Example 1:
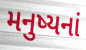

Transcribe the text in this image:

મનુષ્યનાં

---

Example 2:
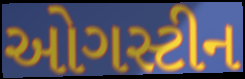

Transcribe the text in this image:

ઓગસ્ટીન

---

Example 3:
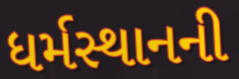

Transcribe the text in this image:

ધર્મસ્થાનની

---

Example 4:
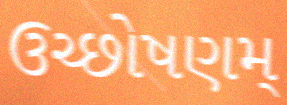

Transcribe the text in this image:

ઉચ્છોષણમ્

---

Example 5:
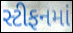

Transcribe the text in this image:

સ્ટીફનમાં